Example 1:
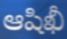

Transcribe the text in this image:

ఆషిఖీ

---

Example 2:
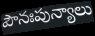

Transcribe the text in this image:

పౌనఃపున్యాలు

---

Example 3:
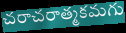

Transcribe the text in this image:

చరాచరాత్మకమగు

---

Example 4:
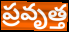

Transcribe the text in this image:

ప్రవృత్త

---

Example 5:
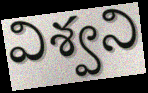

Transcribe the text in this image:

విశ్వని